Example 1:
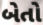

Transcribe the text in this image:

બેતો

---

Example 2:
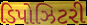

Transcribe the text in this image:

ડિપોઝિટરી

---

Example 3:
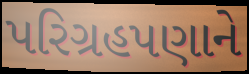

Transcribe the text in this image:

પરિગ્રહપણાને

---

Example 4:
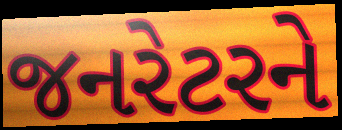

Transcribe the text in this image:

જનરેટરને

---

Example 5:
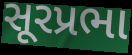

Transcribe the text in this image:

સૂરપ્રભા